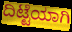
ದಿಟ್ಟೆಯಾಗಿ